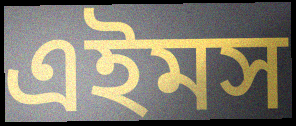
এইমস